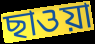
ছাওয়া